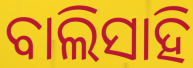
ବାଲିସାହି